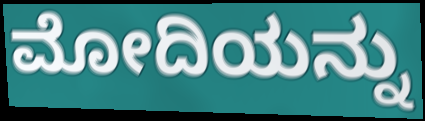
ಮೋದಿಯನ್ನು